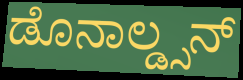
ಡೊನಾಲ್ಡ್ಸನ್